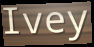
Ivey